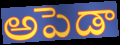
అపెడా